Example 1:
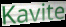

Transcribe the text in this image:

Kavite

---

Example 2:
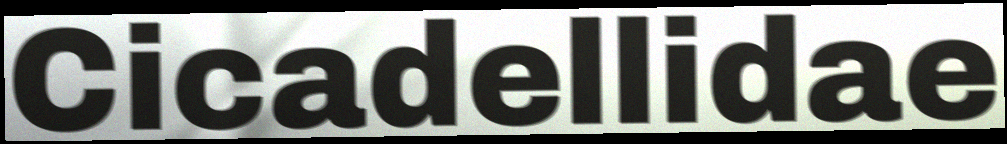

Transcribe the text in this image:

Cicadellidae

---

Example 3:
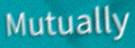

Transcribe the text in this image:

Mutually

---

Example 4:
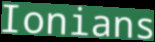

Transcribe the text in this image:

Ionians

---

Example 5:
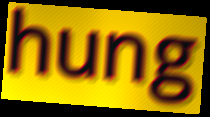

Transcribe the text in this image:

hung